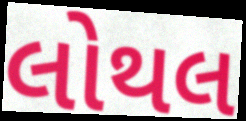
લોથલ